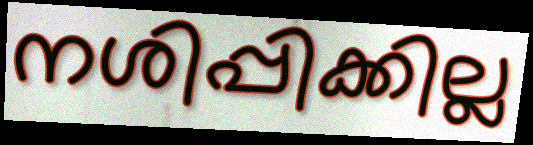
നശിപ്പിക്കില്ല